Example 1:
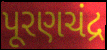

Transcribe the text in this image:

પૂરણચંદ્ર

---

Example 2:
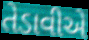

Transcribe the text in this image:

તેડાવીએ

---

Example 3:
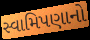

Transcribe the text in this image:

સ્વામિપણાનો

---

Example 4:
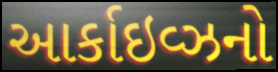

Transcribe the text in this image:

આર્કાઇવ્ઝનો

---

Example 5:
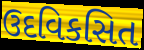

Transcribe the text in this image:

ઉદવિકસિત